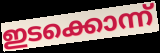
ഇടക്കൊന്ന്